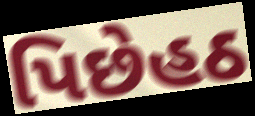
પિછેહઠ